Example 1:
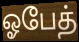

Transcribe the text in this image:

ஓபேத்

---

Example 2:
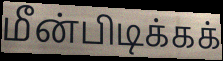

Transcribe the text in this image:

மீன்பிடிக்கக்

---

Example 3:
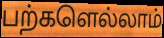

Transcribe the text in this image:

பற்களெல்லாம்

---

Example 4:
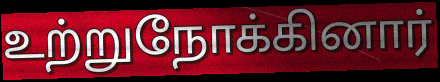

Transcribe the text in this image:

உற்றுநோக்கினார்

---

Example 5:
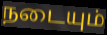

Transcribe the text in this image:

நடையும்